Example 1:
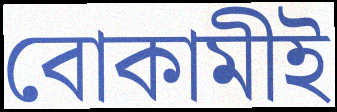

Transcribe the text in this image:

বোকামীই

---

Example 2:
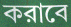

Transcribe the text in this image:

করাবে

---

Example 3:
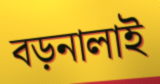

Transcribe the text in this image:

বড়নালাই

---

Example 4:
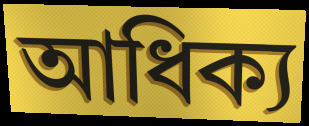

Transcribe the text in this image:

আধিক্য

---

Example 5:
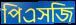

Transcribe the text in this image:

পিএসজি